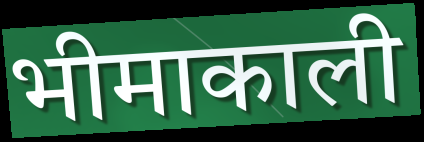
भीमाकाली